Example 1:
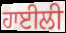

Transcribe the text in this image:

ਹਾਈਲੀ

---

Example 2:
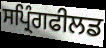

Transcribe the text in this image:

ਸਪ੍ਰਿੰਗਫੀਲਡ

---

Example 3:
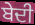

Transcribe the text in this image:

ਬੇਦੀ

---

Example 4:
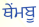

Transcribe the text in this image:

ਥੇਂਮਬੂ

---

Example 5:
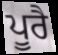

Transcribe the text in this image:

ਪੂਰੈ